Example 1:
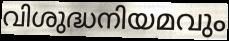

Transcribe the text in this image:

വിശുദ്ധനിയമവും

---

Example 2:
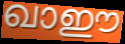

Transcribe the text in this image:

ഖാഈ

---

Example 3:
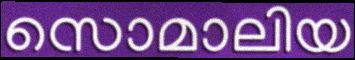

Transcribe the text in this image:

സൊമാലിയ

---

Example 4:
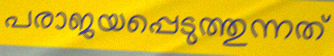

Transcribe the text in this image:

പരാജയപ്പെടുത്തുന്നത്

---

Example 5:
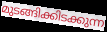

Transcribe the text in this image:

മുടങ്ങിക്കിടക്കുന്ന